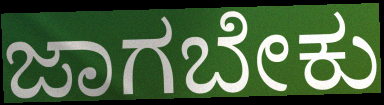
ಜಾಗಬೇಕು